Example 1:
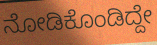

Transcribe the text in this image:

ನೋಡಿಕೊಂಡಿದ್ದೇ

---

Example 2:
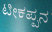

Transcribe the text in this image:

ಟೀಕಪ್ಪನ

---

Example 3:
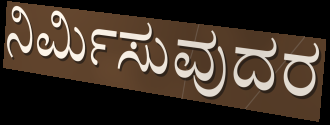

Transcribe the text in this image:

ನಿರ್ಮಿಸುವುದರ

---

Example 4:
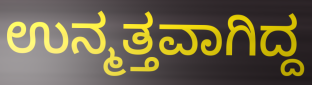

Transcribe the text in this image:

ಉನ್ಮತ್ತವಾಗಿದ್ದ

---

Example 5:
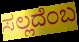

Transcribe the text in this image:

ಸಲ್ಲದೆಂಬ